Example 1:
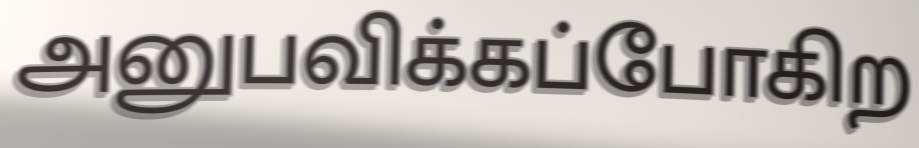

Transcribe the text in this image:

அனுபவிக்கப்போகிற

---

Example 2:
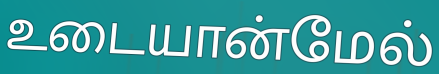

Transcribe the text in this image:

உடையான்மேல்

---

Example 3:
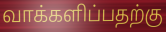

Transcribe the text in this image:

வாக்களிப்பதற்கு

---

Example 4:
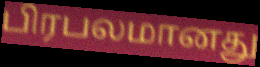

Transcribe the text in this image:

பிரபலமானது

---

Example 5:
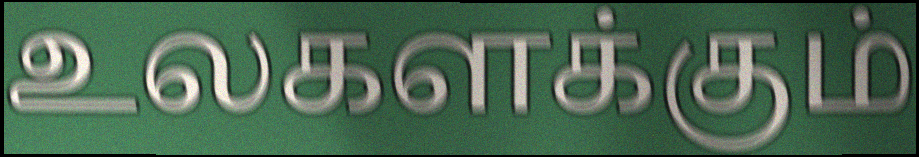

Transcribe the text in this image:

உலகளக்கும்